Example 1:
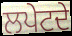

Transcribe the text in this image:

ਲਪੇਟਦੇ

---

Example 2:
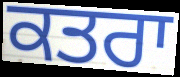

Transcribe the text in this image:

ਕਤਰਾ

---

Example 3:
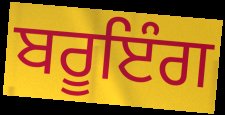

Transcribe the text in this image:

ਬਰੂਇੰਗ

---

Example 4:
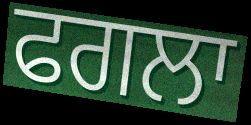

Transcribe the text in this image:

ਫਗਲਾ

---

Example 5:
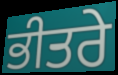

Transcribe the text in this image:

ਭੀਤਰੇ